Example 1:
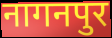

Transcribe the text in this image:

नागनपुर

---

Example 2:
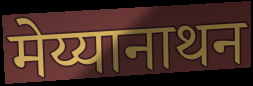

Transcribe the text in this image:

मेय्यानाथन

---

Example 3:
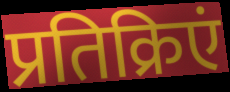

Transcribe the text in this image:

प्रतिक्रिएं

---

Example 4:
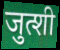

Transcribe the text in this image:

जुत्शी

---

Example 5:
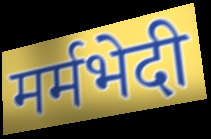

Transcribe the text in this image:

मर्मभेदी